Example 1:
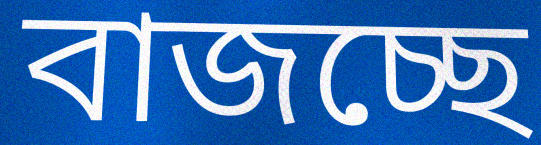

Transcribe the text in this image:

বাজচ্ছে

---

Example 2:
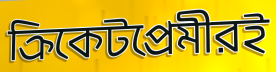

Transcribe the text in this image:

ক্রিকেটপ্রেমীরই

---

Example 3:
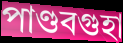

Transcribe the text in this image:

পাণ্ডবগুহা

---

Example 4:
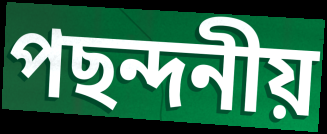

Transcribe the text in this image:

পছন্দনীয়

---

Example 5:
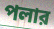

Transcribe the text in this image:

পলার